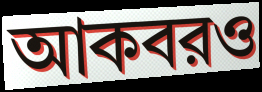
আকবরও